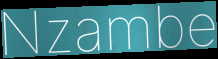
Nzambe